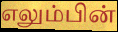
எலும்பின்